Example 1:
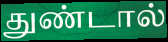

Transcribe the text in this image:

துண்டால்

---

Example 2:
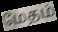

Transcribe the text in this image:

மேதம்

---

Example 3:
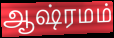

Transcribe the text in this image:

ஆஷ்ரமம்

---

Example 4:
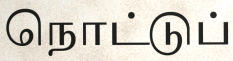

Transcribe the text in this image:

நொட்டுப்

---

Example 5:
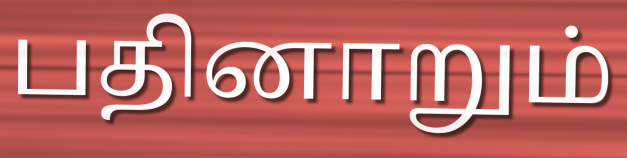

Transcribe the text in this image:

பதினாறும்